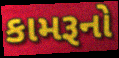
કામરૂનો